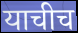
याचीच